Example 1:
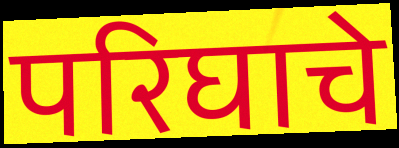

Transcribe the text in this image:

परिघाचे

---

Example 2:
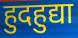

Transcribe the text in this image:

हुदहुद्या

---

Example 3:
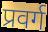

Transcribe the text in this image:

प्रवर्ग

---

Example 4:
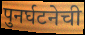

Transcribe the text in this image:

पुनर्घटनेची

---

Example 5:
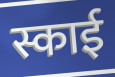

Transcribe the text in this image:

स्काई